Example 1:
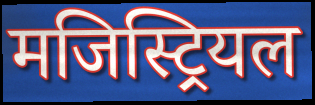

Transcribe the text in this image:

मजिस्ट्रियल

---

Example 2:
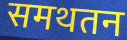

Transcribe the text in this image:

समथतन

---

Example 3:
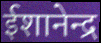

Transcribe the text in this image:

ईशानेन्द्र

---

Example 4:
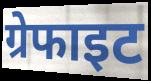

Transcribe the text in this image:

ग्रेफाइट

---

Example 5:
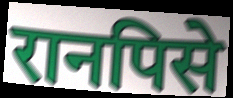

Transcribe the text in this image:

रानपिसे